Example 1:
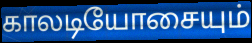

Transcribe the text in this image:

காலடியோசையும்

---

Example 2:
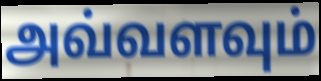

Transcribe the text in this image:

அவ்வளவும்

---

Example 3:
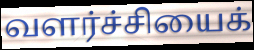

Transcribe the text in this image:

வளர்ச்சியைக்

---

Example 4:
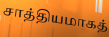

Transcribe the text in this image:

சாத்தியமாகத்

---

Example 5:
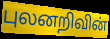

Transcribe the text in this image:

புலனறிவின்